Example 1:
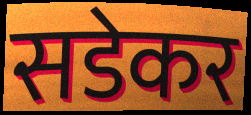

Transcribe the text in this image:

सडेकर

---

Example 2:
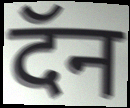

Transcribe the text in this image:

दॅन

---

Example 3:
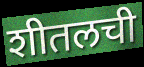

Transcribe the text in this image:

शीतलची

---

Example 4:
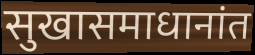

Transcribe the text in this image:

सुखासमाधानांत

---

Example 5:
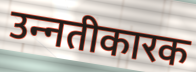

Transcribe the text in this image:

उन्नतीकारक